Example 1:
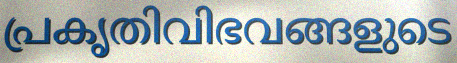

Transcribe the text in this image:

പ്രകൃതിവിഭവങ്ങളുടെ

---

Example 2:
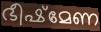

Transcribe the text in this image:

ഭീഷ്മേണ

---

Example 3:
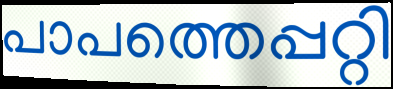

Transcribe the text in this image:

പാപത്തെപ്പറ്റി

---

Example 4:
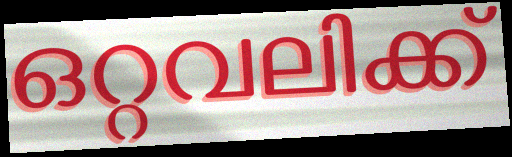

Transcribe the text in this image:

ഒറ്റവലിക്ക്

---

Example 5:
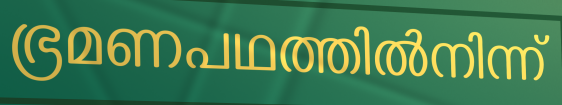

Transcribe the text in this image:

ഭ്രമണപഥത്തിൽനിന്ന്